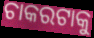
ଚାକରଟାକୁ